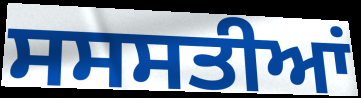
ਸਸਸਤੀਆਂ